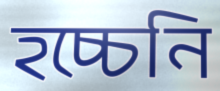
হচ্চেনি